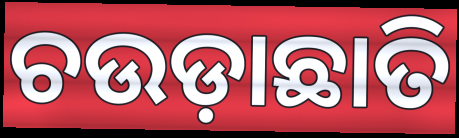
ଚଉଡ଼ାଛାତି